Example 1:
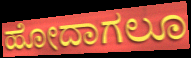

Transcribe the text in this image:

ಹೋದಾಗಲೂ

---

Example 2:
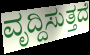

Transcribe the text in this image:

ವೃದ್ದಿಸುತ್ತದೆ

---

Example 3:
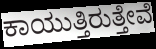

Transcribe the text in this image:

ಕಾಯುತ್ತಿರುತ್ತೇವೆ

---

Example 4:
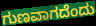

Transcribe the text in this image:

ಗುಣವಾಗದೆಂದು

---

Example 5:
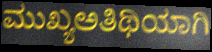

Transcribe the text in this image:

ಮುಖ್ಯಅತಿಥಿಯಾಗಿ